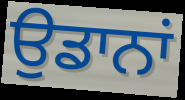
ਉਡਾਨਾਂ